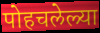
पोहचलेल्या